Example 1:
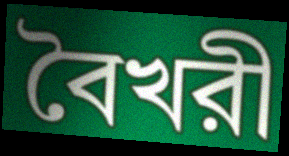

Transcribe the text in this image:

বৈখরী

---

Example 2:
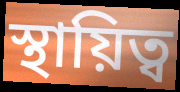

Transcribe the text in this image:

স্থায়িত্ব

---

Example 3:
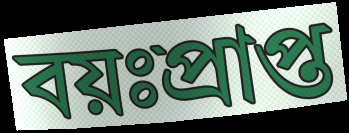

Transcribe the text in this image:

বয়ঃপ্রাপ্ত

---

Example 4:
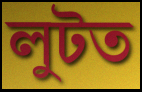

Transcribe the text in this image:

লুটত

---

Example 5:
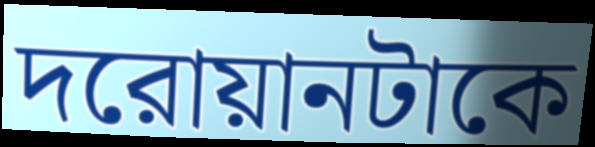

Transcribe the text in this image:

দরোয়ানটাকে